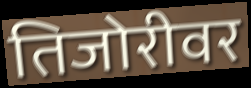
तिजोरीवर